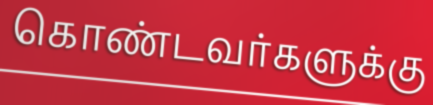
கொண்டவர்களுக்கு